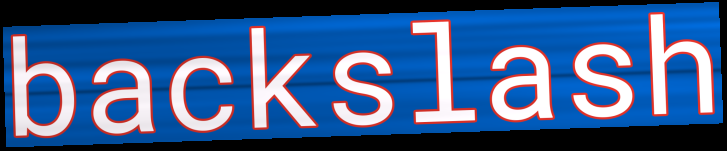
backslash